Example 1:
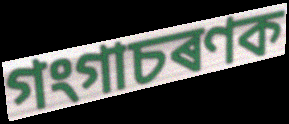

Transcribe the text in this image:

গংগাচৰণক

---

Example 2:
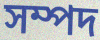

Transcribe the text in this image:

সম্পদ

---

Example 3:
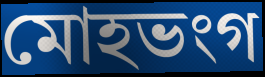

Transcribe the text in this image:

মোহভংগ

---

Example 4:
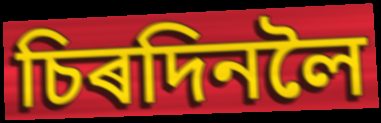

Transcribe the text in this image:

চিৰদিনলৈ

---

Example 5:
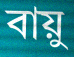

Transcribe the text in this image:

বায়ু